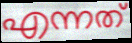
എന്നത്